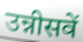
उन्नीसवें